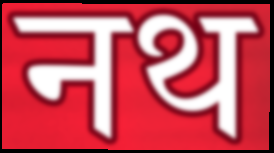
नथ